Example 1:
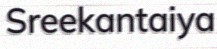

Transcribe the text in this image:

Sreekantaiya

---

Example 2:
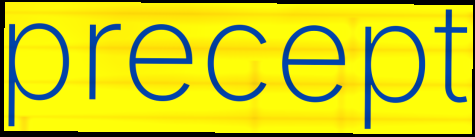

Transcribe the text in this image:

precept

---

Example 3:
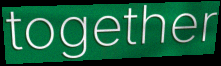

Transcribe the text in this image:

together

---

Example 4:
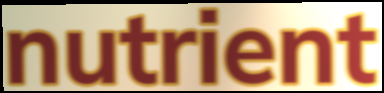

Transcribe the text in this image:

nutrient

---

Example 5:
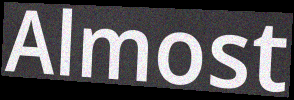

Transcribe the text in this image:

Almost